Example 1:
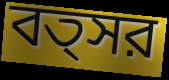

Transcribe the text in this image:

বত্সর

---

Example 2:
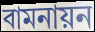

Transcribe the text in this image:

বামনায়ন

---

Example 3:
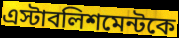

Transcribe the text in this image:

এস্টাবলিশমেন্টকে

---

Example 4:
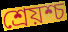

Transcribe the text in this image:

শ্রেয়শ্চ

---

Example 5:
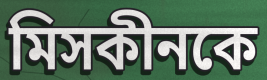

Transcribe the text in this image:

মিসকীনকে